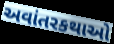
અવાંતરકથાઓ